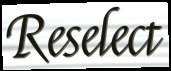
Reselect